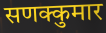
सणक्कुमार